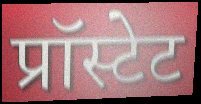
प्रॉस्टेट